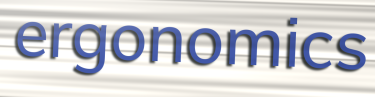
ergonomics